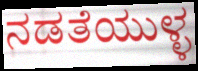
ನಡತೆಯುಳ್ಳ